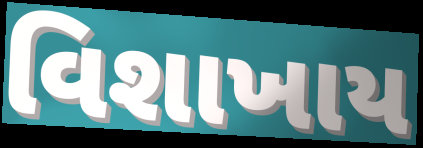
વિશાખાય